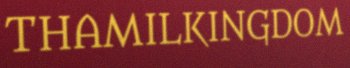
THAMILKINGDOM